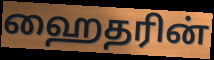
ஹைதரின்